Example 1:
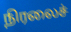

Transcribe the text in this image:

நிரலைச்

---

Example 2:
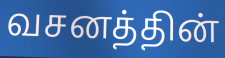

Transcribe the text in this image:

வசனத்தின்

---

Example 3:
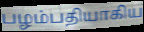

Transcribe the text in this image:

பழம்பதியாகிய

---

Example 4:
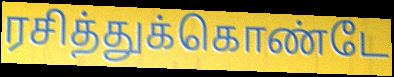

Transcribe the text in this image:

ரசித்துக்கொண்டே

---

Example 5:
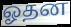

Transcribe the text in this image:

ஓதன